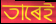
তাৰেই